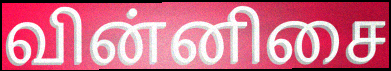
வின்னிசை